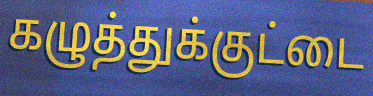
கழுத்துக்குட்டை